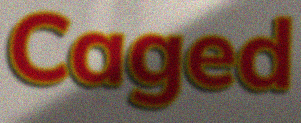
Caged